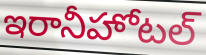
ఇరానీహోటల్